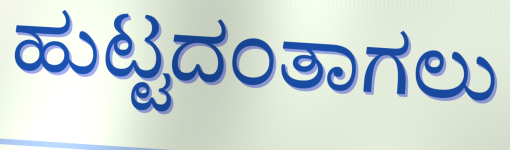
ಹುಟ್ಟದಂತಾಗಲು